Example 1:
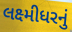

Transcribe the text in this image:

લક્ષ્મીધરનું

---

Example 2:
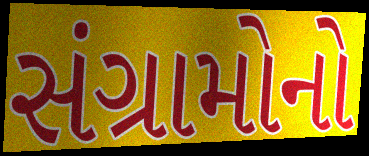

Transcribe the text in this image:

સંગ્રામોનો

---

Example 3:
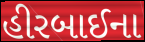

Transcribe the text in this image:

હીરબાઈના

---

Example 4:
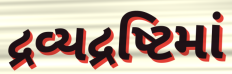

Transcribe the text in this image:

દ્રવ્યદ્રષ્ટિમાં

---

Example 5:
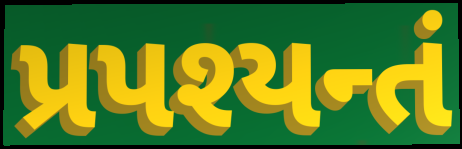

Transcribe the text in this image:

પ્રપશ્યન્તં